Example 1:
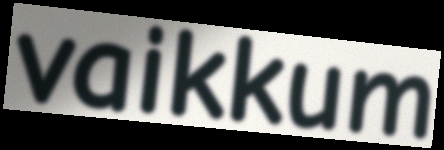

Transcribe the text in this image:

vaikkum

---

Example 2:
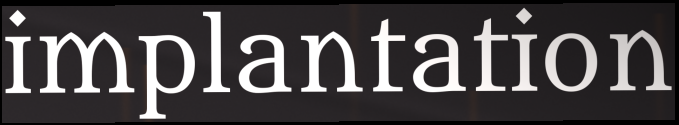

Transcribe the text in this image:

implantation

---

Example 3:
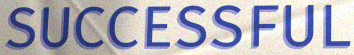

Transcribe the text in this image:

SUCCESSFUL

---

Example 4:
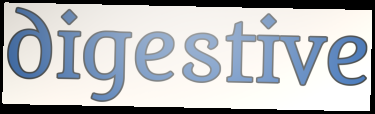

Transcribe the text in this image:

digestive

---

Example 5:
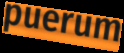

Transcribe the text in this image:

puerum